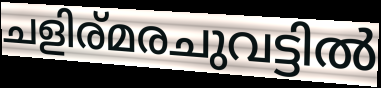
ചളിര്മരചുവട്ടിൽ